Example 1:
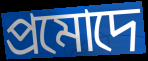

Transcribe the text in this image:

প্ৰমোদে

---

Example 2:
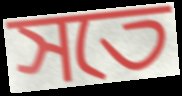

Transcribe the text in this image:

সতে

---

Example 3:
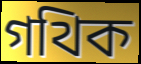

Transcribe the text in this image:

গথিক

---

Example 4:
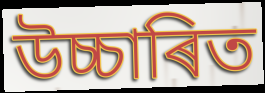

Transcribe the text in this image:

উচ্চাৰিত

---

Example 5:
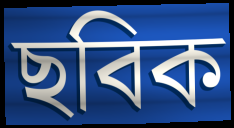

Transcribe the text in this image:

ছবিক